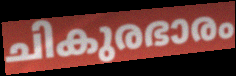
ചികുരഭാരം